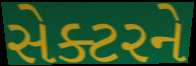
સેક્ટરને